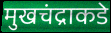
मुखचंद्राकडे